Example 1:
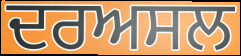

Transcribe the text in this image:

ਦਰਅਸਲ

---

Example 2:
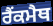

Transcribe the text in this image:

ਰੈਂਕਮੈਥ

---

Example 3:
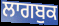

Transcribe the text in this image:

ਲਾਗਬੁਕ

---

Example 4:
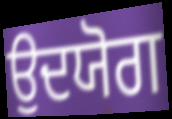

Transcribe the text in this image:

ਉਦਯੋਗ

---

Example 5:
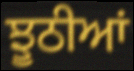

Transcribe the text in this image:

ਝੂਠੀਆਂ